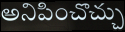
అనిపించొచ్చు